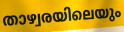
താഴ്വരയിലെയും